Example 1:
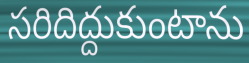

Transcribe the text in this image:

సరిదిద్దుకుంటాను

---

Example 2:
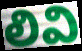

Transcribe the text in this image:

లివి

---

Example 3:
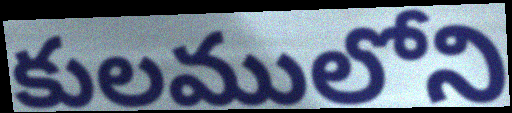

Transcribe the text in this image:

కులములోని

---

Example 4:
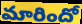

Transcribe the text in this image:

మారిందో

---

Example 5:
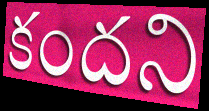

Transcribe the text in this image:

కందని